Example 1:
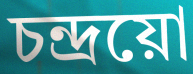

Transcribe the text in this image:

চন্দ্ৰয়ো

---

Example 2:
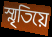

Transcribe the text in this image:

স্মৃতিয়ে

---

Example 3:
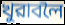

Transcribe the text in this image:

খুৱাবলৈ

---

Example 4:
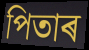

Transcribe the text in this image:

পিতাৰ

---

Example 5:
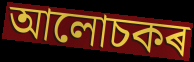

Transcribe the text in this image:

আলোচকৰ